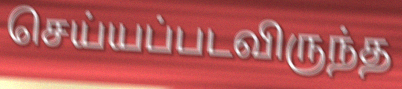
செய்யப்படவிருந்த